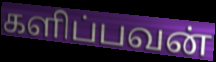
களிப்பவன்